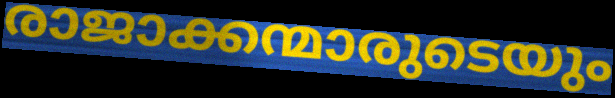
രാജാക്കന്മാരുടെയും